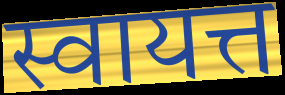
स्वायत्त